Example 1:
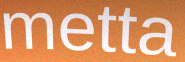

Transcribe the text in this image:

metta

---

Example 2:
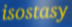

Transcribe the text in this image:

isostasy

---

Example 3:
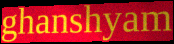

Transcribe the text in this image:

ghanshyam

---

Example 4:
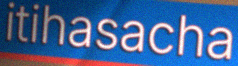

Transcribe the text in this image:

itihasacha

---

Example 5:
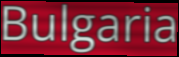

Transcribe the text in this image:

Bulgaria